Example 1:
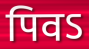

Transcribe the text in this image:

पिवऽ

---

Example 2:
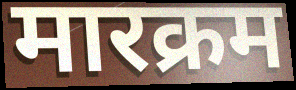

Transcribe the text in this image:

मारक्रम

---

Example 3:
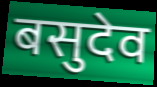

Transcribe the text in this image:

बसुदेव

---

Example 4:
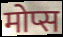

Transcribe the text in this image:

मोप्स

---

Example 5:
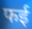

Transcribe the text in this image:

फई